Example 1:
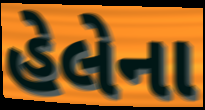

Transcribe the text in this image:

હેલેના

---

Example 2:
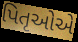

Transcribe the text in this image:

પિતૃઓેએ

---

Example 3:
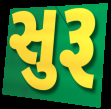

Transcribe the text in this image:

સુરૂ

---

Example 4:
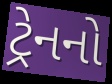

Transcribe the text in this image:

ટ્રેનનો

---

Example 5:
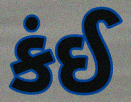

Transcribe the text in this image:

કંઈ